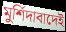
মুর্শিদাবাদেই